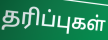
தரிப்புகள்